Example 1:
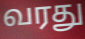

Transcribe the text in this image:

வரது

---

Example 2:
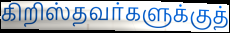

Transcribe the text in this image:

கிறிஸ்தவர்களுக்குத்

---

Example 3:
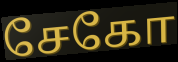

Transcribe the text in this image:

சேகோ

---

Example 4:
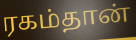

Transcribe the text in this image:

ரகம்தான்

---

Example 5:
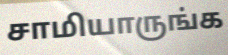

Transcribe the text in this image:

சாமியாருங்க